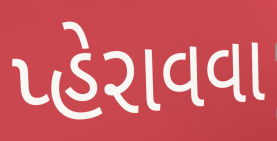
પ્હેરાવવા